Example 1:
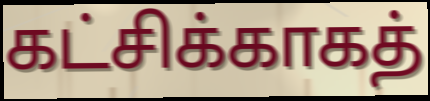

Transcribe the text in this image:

கட்சிக்காகத்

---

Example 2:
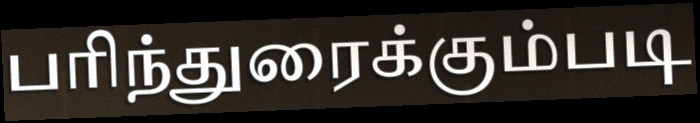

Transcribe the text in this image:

பரிந்துரைக்கும்படி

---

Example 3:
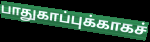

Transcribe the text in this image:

பாதுகாப்புக்காகச்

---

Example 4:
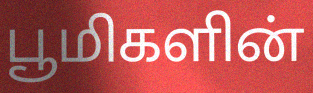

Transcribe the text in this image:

பூமிகளின்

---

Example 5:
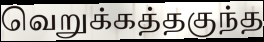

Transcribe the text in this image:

வெறுக்கத்தகுந்த